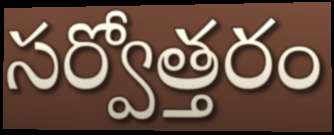
సర్వోత్తరం